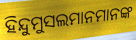
ହିନ୍ଦୁମୁସଲମାନମାନଙ୍କ